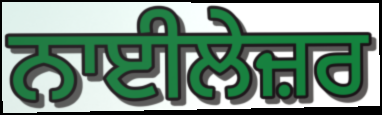
ਨਾਈਲੇਜ਼ਰ